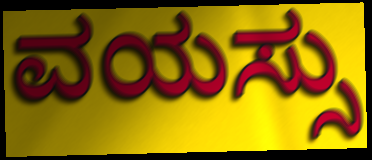
ವಯಸ್ಸು